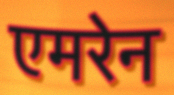
एमरेन